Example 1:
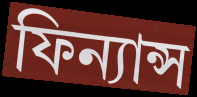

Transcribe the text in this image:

ফিন্যান্স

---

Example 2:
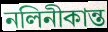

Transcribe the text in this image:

নলিনীকান্ত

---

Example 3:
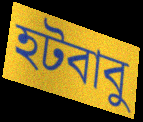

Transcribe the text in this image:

হটবাবু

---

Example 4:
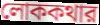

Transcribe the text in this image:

লোককথার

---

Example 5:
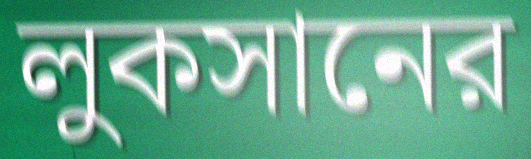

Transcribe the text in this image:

লুকসানের